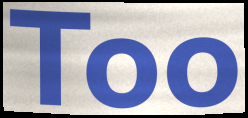
Too